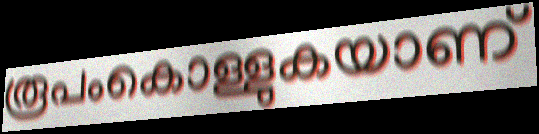
രൂപംകൊള്ളുകയാണ്